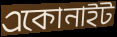
একোনাইট